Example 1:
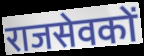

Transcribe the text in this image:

राजसेवकों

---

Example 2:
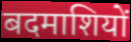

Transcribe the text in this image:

बदमाशियों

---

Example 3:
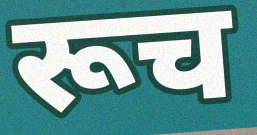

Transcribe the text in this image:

रूच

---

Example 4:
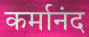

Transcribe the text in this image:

कर्मानंद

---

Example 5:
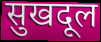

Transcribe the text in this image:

सुखदूल